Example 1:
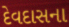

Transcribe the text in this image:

દેવદાસના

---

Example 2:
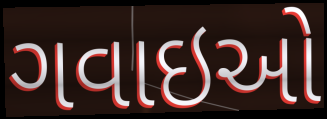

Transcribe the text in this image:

ગવાઇઓ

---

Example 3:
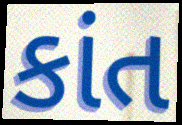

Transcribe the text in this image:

કાંત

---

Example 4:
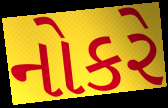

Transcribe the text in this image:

નોકરે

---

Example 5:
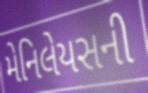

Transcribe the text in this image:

મેનિલેયસની